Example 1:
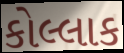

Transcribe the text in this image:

કોલ્લાક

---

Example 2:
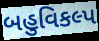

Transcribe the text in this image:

બહુવિકલ્પ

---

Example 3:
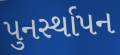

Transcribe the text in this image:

પુનર્સ્થાપન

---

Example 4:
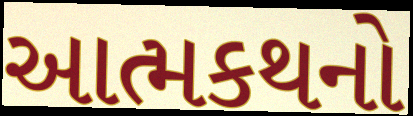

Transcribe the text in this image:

આત્મકથનો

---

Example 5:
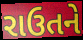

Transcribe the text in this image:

રાઉતને